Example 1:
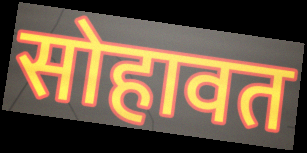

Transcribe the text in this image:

सोहावत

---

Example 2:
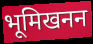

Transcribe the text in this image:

भूमिखनन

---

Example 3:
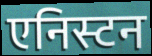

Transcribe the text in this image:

एनिस्टन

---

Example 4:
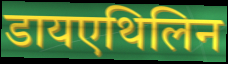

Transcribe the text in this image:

डायएथिलिन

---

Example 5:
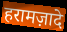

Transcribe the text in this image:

हरामज़ादे